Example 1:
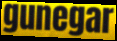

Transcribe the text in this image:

gunegar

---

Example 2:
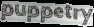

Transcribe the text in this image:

puppetry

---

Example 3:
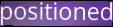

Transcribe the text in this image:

positioned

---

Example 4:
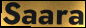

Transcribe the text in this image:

Saara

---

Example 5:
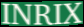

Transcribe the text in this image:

INRIX